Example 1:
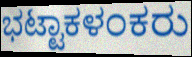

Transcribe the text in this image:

ಭಟ್ಟಾಕಳಂಕರು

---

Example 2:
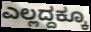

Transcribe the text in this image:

ಎಲ್ಲದ್ದಕ್ಕೂ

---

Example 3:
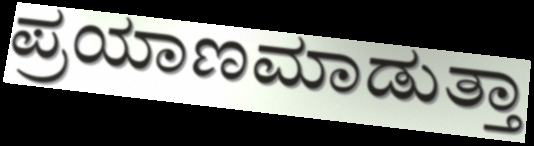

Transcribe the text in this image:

ಪ್ರಯಾಣಮಾಡುತ್ತಾ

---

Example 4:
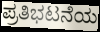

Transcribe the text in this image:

ಪ್ರತಿಭಟನೆಯ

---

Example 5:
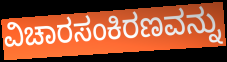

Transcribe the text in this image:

ವಿಚಾರಸಂಕಿರಣವನ್ನು